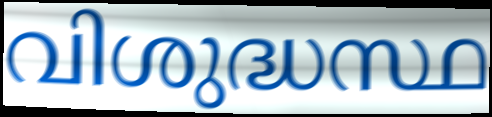
വിശുദ്ധസ്ഥ